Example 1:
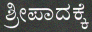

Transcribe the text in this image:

ಶ್ರೀಪಾದಕ್ಕೆ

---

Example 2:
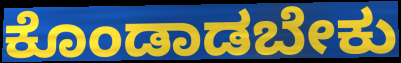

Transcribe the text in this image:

ಕೊಂಡಾಡಬೇಕು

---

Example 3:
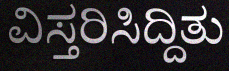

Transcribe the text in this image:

ವಿಸ್ತರಿಸಿದ್ದಿತು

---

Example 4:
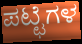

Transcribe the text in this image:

ಪಟ್ಟೆಗಳ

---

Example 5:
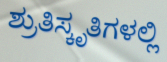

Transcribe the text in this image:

ಶ್ರುತಿಸ್ಕೃತಿಗಳಲ್ಲಿ